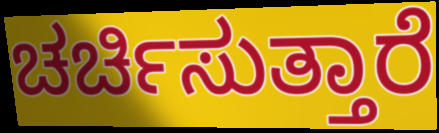
ಚರ್ಚಿಸುತ್ತಾರೆ